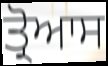
ਤ੍ਰੋਆਸ